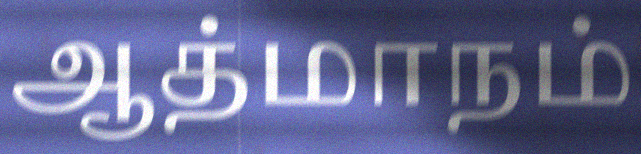
ஆத்மாநம்